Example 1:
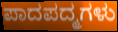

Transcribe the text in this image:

ಪಾದಪದ್ಮಗಳು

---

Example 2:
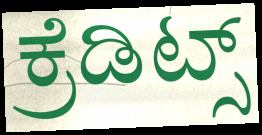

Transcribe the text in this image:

ಕ್ರೆಡಿಟ್ಸ್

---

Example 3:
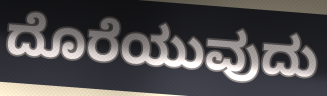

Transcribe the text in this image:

ದೊರೆಯುವುದು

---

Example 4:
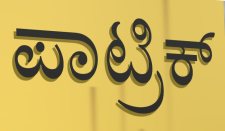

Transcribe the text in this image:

ಪಾಟ್ರಿಕ್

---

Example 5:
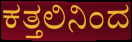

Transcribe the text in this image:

ಕತ್ತಲಿನಿಂದ